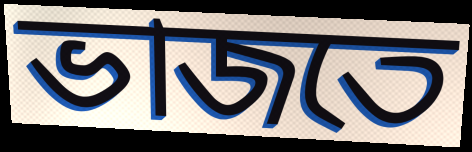
ভাজতে